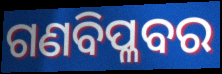
ଗଣବିପ୍ଳବର